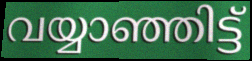
വയ്യാഞ്ഞിട്ട്